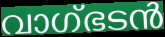
വാഗ്ഭടൻ